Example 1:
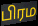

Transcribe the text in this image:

பிரம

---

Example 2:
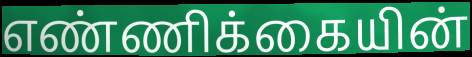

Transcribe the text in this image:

எண்ணிக்கையின்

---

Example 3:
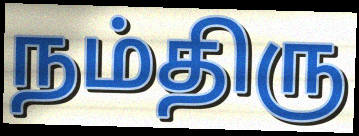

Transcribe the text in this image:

நம்திரு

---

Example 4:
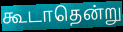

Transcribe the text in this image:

கூடாதென்று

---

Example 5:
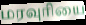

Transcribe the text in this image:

மரவுரியை